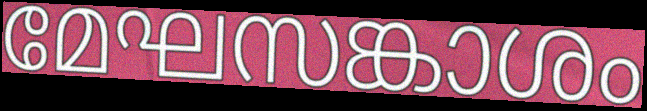
മേഘസങ്കാശം